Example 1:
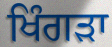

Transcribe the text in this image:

ਖਿੰਗੜਾ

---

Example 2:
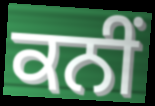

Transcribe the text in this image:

ਕਨੀਂ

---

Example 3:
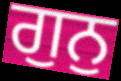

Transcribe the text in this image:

ਗੁਨੁ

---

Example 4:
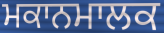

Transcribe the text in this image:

ਮਕਾਨਮਾਲਕ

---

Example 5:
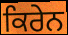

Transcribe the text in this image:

ਕਿਰੇਨ